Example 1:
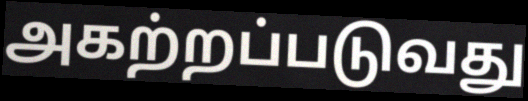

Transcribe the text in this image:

அகற்றப்படுவது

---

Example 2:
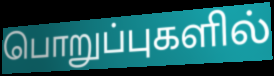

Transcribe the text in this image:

பொறுப்புகளில்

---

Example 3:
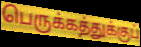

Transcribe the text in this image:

பெருக்கத்துக்குப்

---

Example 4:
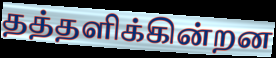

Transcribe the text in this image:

தத்தளிக்கின்றன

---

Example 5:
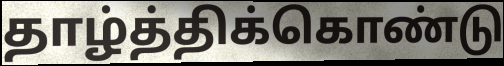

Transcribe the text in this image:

தாழ்த்திக்கொண்டு